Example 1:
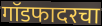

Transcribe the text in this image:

गॉडफादरचा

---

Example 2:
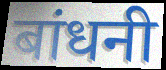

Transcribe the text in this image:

बांधनी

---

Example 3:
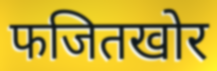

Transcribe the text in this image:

फजितखोर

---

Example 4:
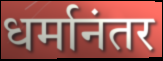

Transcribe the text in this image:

धर्मानंतर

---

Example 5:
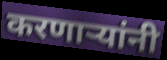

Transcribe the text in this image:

करणार्‍यांनी